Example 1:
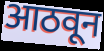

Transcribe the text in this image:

आठवून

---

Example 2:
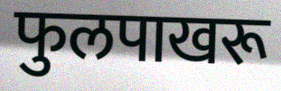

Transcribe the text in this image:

फुलपाखरू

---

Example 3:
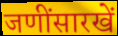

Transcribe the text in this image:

जणींसारखें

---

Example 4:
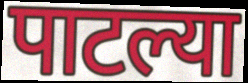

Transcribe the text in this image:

पाटल्या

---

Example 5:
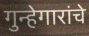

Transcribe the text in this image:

गुन्हेगारांचे